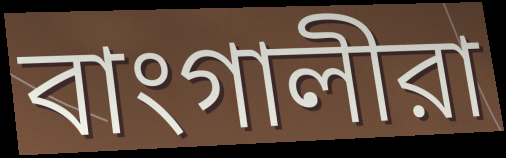
বাংগালীরা